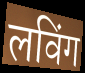
लविंग